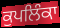
ਕੁਪਲਿੰਕਾ